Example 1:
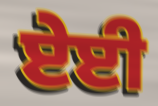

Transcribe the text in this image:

ਏਈ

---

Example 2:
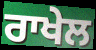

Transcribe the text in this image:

ਰਾਖੇਲ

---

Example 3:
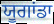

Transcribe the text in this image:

ਯੂਗਾਂਡਾ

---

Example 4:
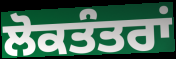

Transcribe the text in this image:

ਲੋਕਤੰਤਰਾਂ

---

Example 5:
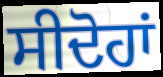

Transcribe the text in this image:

ਸੀਦੋਹਾਂ